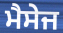
ਮੈਸੇਜ